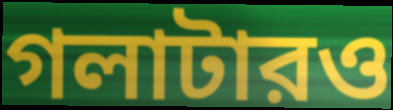
গলাটারও